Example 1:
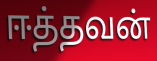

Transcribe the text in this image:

ஈத்தவன்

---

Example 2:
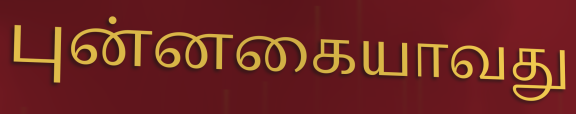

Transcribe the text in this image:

புன்னகையாவது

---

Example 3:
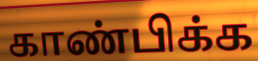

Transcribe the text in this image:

காண்பிக்க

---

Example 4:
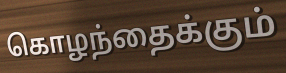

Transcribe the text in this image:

கொழந்தைக்கும்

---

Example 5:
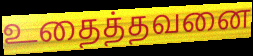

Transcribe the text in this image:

உதைத்தவனை